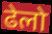
ढेलो